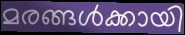
മരങ്ങൾക്കായി